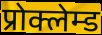
प्रोक्लेम्ड